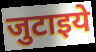
जुटाइये